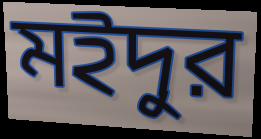
মইদুর